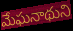
మేఘనాథుని